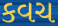
કવચ